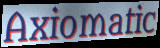
Axiomatic